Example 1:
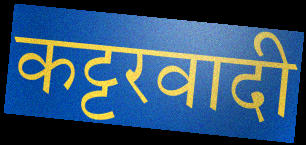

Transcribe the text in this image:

कट्टरवादी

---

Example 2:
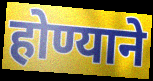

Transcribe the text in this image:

होण्याने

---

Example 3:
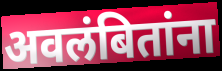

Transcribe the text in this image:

अवलंबितांना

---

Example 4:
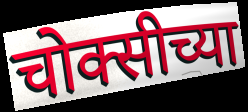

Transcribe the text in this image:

चोक्सीच्या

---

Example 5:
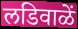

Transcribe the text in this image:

लडिवाळें